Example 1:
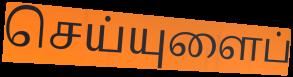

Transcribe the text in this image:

செய்யுளைப்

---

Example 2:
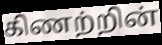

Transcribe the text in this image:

கிணற்றின்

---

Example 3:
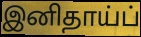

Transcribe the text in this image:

இனிதாய்ப்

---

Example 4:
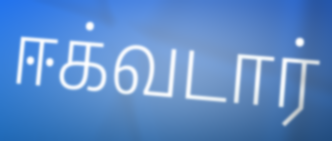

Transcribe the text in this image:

ஈக்வடார்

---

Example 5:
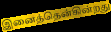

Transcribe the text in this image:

இனைத்தென்கின்றது